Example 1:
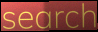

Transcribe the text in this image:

search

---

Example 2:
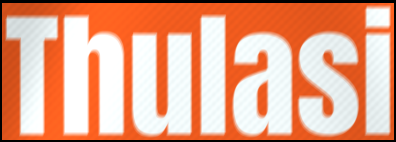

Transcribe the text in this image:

Thulasi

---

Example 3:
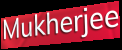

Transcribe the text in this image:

Mukherjee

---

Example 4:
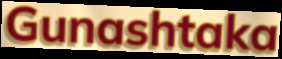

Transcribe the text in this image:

Gunashtaka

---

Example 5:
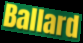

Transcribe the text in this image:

Ballard